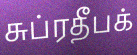
சுப்ரதீபக்